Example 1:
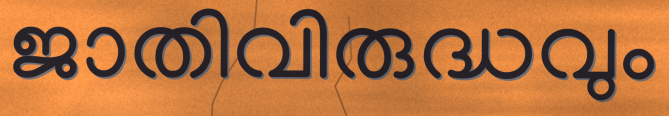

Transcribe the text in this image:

ജാതിവിരുദ്ധവും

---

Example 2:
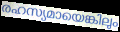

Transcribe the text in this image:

രഹസ്യമായെങ്കിലും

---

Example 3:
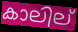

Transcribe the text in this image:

കാലില്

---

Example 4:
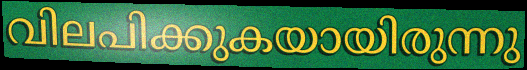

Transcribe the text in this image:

വിലപിക്കുകയായിരുന്നു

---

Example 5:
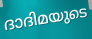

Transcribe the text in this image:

ദാദിമയുടെ